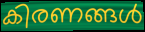
കിരണങ്ങൾ